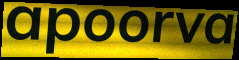
apoorva